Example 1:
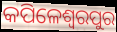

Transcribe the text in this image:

କପିଳେଶ୍ୱରପୁର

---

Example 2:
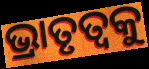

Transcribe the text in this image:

ଭ୍ରାତୃତ୍ୱକୁ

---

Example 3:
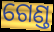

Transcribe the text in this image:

ଗେଣ୍ଡ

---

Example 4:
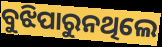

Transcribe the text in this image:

ବୁଝିପାରୁନଥିଲେ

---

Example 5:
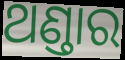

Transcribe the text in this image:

ଥଣ୍ଡାର